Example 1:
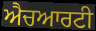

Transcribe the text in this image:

ਐਚਆਰਟੀ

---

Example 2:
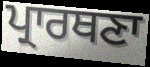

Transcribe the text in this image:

ਪ੍ਰਾਰਥਣਾ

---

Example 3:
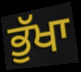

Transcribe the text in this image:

ਭੁੱਖਾ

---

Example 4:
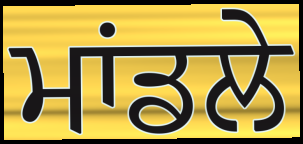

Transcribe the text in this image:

ਮਾਂਡਲੇ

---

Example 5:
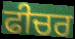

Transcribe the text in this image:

ਫੀਚਰ